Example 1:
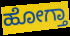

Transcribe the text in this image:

ಹೋಗ್ತಾ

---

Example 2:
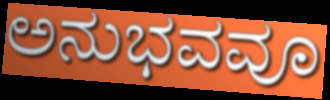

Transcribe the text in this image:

ಅನುಭವವೂ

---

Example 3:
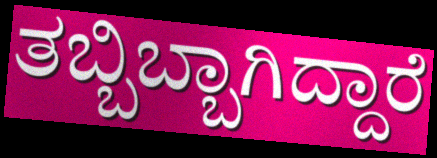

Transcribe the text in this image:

ತಬ್ಬಿಬ್ಬಾಗಿದ್ದಾರೆ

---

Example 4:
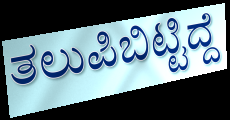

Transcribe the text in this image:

ತಲುಪಿಬಿಟ್ಟಿದ್ದೆ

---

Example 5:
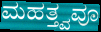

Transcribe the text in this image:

ಮಹತ್ತ್ವವೂ